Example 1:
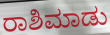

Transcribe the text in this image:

ರಾಶಿಮಾಡು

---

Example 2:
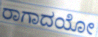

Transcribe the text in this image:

ರಾಗಾದಯೋ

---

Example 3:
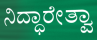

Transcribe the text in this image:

ನಿದ್ಧಾರೇತ್ವಾ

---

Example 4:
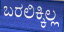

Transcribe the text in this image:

ಬರಲಿಕ್ಕಿಲ್ಲ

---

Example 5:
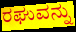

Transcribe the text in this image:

ರಘುವನ್ನು